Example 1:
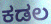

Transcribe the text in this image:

ಕಡಲ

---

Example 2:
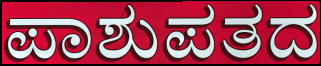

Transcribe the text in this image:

ಪಾಶುಪತದ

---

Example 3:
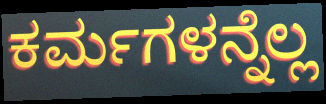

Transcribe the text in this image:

ಕರ್ಮಗಳನ್ನೆಲ್ಲ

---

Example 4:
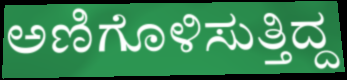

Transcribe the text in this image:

ಅಣಿಗೊಳಿಸುತ್ತಿದ್ದ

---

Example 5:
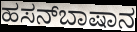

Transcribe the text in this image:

ಹಸನ್‌ಬಾಷಾನ